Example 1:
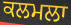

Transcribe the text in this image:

ਕਲਮਲਾ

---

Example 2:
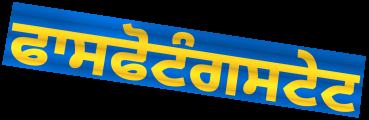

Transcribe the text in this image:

ਫਾਸਫੋਟੰਗਸਟੇਟ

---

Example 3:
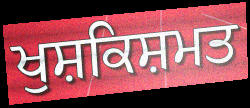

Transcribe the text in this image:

ਖੁਸ਼ਕਿਸ਼ਮਤ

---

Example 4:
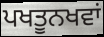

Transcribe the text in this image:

ਪਖਤੂਨਖਵਾਂ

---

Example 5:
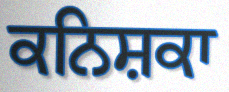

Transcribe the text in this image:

ਕਨਿਸ਼ਕਾ